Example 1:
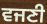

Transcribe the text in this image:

ਵਜਣੀ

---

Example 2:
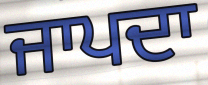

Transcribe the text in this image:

ਜਾਪਦਾ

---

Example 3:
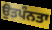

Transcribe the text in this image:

ਉਤਪੰਨਤਾ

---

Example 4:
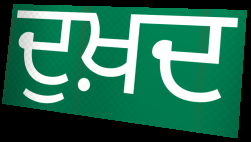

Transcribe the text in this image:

ਦੁਖ਼ਦ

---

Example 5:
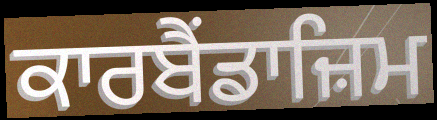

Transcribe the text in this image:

ਕਾਰਬੈਂਡਾਜ਼ਿਮ